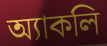
অ্যাকলি